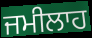
ਜਮੀਲਾਹ